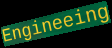
Engineeing